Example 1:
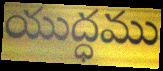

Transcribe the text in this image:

యుద్ధము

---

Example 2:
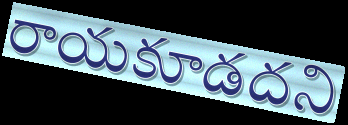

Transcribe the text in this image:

రాయకూడదని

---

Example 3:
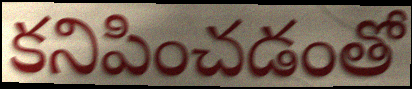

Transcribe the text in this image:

కనిపించడంతో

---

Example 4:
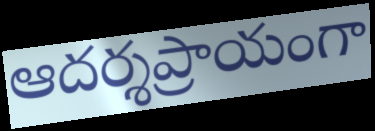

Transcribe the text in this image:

ఆదర్శప్రాయంగా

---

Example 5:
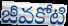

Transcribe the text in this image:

జీవకోటి